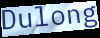
Dulong